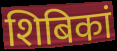
शिबिकां